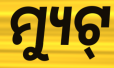
ମ୍ୟୁଟ୍